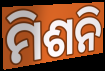
ମିଶନି